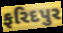
ફરિદપુર